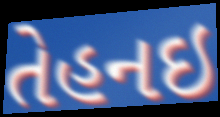
તેહનઇ